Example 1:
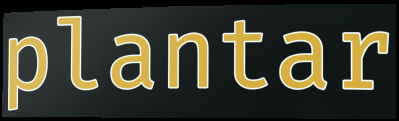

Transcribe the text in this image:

plantar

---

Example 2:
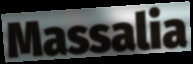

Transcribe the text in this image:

Massalia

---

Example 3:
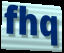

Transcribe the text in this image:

fhq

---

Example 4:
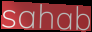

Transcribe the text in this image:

sahab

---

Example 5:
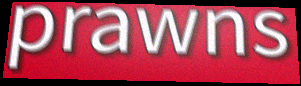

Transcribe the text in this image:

prawns